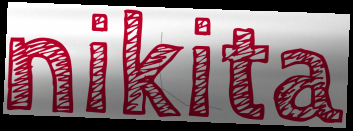
nikita